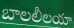
బాలలీలయా